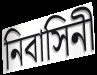
নিবাসিনী